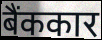
बैंककार